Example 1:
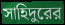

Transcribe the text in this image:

সাহিদুরের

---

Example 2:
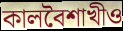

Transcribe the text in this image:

কালবৈশাখীও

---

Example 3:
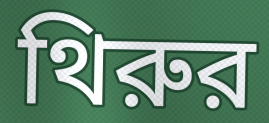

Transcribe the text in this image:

থিরুর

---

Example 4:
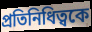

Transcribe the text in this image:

প্রতিনিধিত্বকে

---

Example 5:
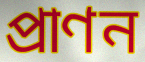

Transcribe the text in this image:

প্রাণন